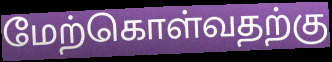
மேற்கொள்வதற்கு